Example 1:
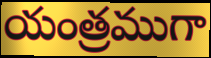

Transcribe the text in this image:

యంత్రముగా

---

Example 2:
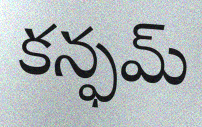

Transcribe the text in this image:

కన్ఫమ్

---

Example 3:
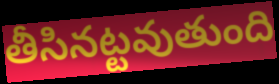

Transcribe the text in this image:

తీసినట్టవుతుంది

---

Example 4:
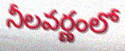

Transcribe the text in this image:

నీలవర్ణంలో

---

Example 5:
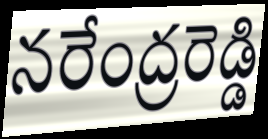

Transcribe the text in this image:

నరేంద్రరెడ్డి